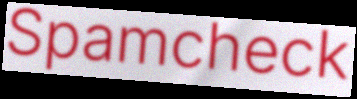
Spamcheck